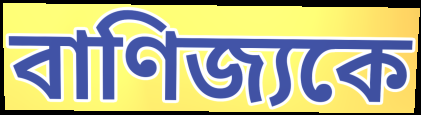
বাণিজ্যকে